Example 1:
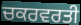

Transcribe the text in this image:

ਚਕਰਵਰਤੀ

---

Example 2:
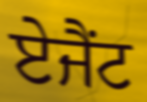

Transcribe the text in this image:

ਏਜੈਂਟ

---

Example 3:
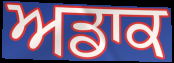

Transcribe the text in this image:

ਅਡਾਕ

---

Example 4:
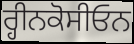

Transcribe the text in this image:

ਰ੍ਹੀਨਕੋਸੀਓਨ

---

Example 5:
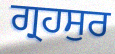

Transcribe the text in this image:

ਗ੍ਰਹਸੁਰ